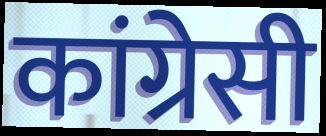
कांग्रेसी